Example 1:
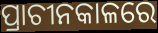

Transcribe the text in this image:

ପ୍ରାଚୀନକାଳରେ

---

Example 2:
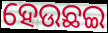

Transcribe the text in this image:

ହେଉଛଇ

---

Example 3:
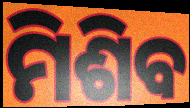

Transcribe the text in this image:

ମିଶିବ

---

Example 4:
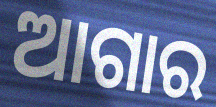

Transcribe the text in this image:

ଆଗାର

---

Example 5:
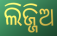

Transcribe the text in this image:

ଲିଜ୍ଜିଅ